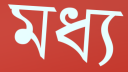
মধ্য